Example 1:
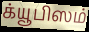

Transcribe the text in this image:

க்யூபிஸம்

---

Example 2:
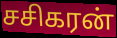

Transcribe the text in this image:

சசிகரன்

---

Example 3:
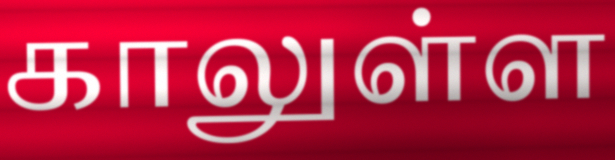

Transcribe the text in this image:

காலுள்ள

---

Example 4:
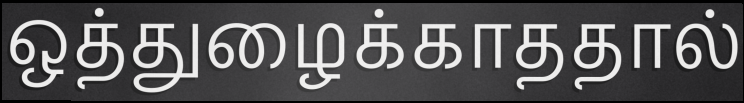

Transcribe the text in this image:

ஒத்துழைக்காததால்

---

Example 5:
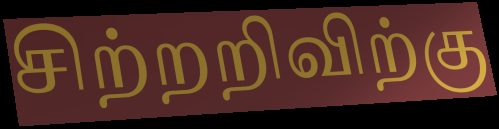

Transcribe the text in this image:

சிற்றறிவிற்கு